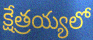
క్షేత్రయ్యలో